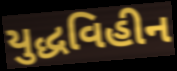
યુદ્ધવિહીન